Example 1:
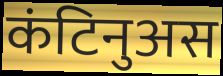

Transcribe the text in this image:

कंटिनुअस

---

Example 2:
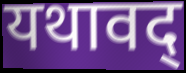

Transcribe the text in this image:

यथावद्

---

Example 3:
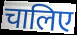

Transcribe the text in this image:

चालिए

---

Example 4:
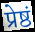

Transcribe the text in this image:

प्रेष्ठं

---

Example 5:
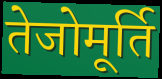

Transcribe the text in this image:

तेजोमूर्ति